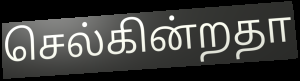
செல்கின்றதா